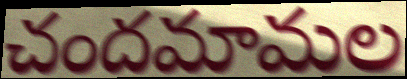
చందమామల